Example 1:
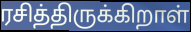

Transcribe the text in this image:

ரசித்திருக்கிறாள்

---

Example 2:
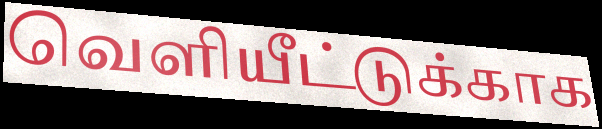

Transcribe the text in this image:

வெளியீட்டுக்காக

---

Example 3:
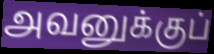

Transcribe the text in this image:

அவனுக்குப்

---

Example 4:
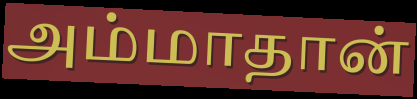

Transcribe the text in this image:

அம்மாதான்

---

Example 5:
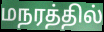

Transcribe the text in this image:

மநரத்தில்